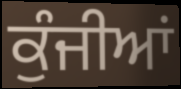
ਕੁੰਜੀਆਂ